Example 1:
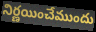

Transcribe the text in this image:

నిర్ణయించేముందు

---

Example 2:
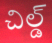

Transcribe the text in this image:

చిల్డ్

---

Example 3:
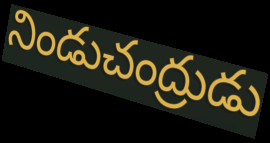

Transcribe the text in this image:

నిండుచంద్రుడు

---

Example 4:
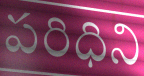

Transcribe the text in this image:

పరిధిని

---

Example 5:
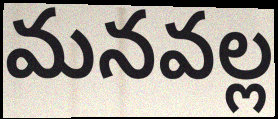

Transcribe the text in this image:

మనవల్ల